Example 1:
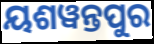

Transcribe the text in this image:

ୟଶୱନ୍ତପୁର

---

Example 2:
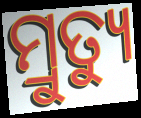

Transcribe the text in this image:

ମ୍ରୁତ୍ୟୁ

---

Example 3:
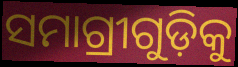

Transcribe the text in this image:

ସମାଗ୍ରୀଗୁଡ଼ିକୁ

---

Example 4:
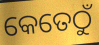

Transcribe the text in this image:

କେତେଠୁଁ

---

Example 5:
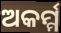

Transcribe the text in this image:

ଅକର୍ମ୍ମ